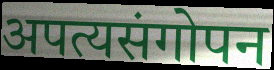
अपत्यसंगोपन